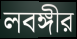
লবঙ্গীর